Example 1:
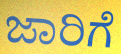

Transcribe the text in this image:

ಜಾರಿಗೆ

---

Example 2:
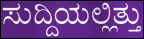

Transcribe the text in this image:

ಸುದ್ದಿಯಲ್ಲಿತ್ತು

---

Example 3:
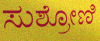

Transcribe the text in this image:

ಸುಶ್ರೋಣಿ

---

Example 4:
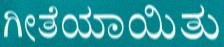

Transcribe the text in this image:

ಗೀತೆಯಾಯಿತು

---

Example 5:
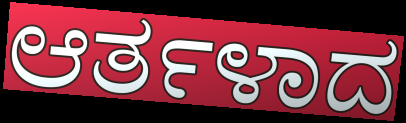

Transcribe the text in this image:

ಆರ್ತಳಾದ